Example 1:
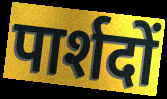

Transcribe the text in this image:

पार्शदों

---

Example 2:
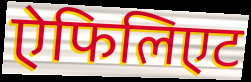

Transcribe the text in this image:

ऐफिलिएट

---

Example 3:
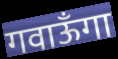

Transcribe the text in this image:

गवाऊँगा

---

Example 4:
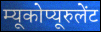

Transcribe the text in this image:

म्यूकोप्यूरुलेंट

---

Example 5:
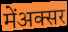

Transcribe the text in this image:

मेंअक्सर